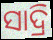
ସାଦ୍ରି